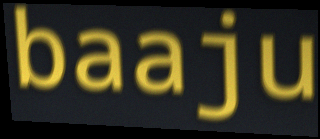
baaju